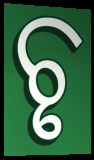
ଚୃ